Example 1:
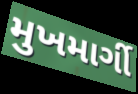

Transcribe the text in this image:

મુખમાર્ગી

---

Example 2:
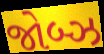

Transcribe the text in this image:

જોબ્ઝ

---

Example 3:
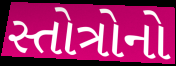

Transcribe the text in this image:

સ્તોત્રોનો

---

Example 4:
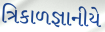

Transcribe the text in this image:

ત્રિકાળજ્ઞાનીયે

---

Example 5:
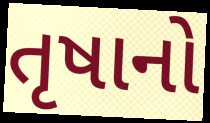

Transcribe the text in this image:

તૃષાનો